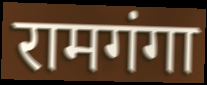
रामगंगा